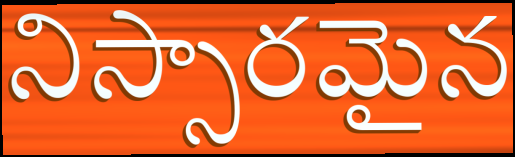
నిస్సారమైన